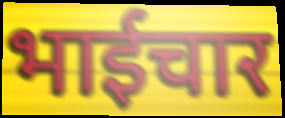
भाईचार